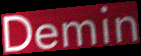
Demin